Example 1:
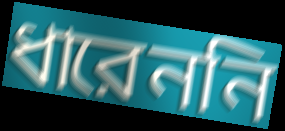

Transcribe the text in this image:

ধারেননি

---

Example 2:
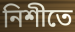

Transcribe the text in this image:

নিশীতে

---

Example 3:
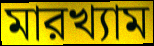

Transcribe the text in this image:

মারখ্যাম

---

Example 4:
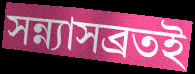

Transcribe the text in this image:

সন্ন্যাসব্রতই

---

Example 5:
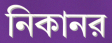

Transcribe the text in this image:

নিকানর